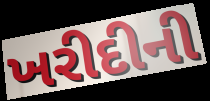
ખરીદીની